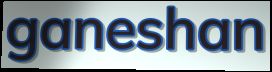
ganeshan